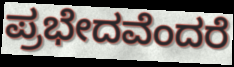
ಪ್ರಭೇದವೆಂದರೆ